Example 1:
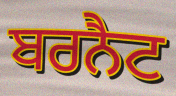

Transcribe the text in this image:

ਬਰਨੈਟ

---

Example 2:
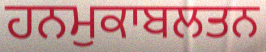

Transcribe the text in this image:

ਹਨਮੁਕਾਬਲਤਨ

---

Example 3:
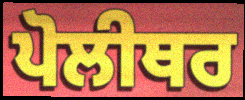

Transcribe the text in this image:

ਪੋਲੀਥਰ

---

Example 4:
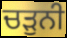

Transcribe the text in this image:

ਚੜੁਨੀ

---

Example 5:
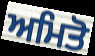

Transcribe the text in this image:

ਅਮਿਤੋ